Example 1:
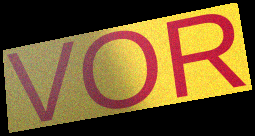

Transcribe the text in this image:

VOR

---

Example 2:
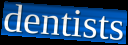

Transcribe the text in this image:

dentists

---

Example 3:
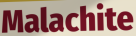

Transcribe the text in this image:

Malachite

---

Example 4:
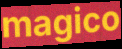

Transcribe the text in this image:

magico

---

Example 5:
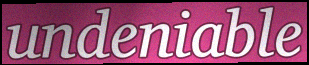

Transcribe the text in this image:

undeniable